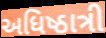
અધિષ્ઠાત્રી